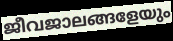
ജീവജാലങ്ങളേയും